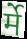
र्मे